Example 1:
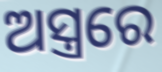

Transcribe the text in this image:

ଅସ୍ତ୍ରରେ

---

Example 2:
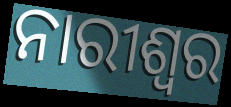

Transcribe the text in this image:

ନାରୀଶ୍ବର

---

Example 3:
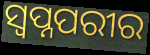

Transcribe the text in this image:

ସ୍ୱପ୍ନପରୀର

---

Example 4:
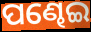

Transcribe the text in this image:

ପଣ୍ଢେଇ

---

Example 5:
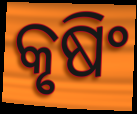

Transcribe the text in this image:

କୃଷିଂ